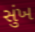
સુંખ